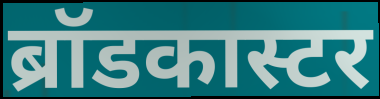
ब्रॉडकास्टर